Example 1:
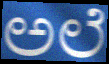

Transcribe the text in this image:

ಅಲೆ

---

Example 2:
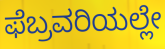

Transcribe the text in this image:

ಫೆಬ್ರವರಿಯಲ್ಲೇ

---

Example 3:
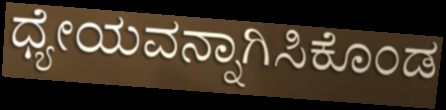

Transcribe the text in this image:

ಧ್ಯೇಯವನ್ನಾಗಿಸಿಕೊಂಡ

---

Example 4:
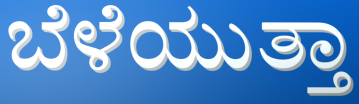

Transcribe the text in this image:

ಬೆಳೆಯುತ್ತಾ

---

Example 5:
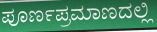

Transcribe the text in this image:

ಪೂರ್ಣಪ್ರಮಾಣದಲ್ಲಿ